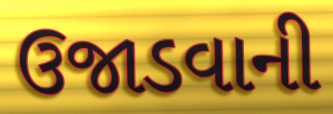
ઉજાડવાની